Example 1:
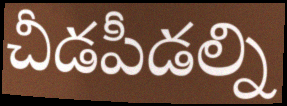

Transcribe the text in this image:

చీడపీడల్ని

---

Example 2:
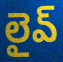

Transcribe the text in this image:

లైవ్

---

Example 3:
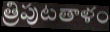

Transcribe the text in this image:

త్రిపుటతాళం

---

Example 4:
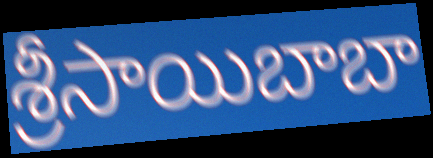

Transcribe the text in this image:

శ్రీసాయిబాబా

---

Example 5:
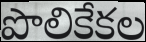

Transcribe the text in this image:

పొలికేకల